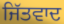
ਜਿੱਤਵਾਦ